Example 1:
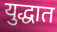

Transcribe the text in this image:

युद्धात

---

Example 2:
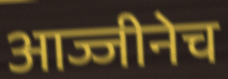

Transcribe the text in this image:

आज्जीनेच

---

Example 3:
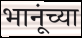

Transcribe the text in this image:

भानूंच्या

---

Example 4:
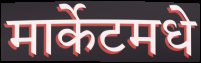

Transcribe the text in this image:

मार्केटमधे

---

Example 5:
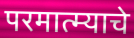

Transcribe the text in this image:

परमात्म्याचे